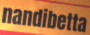
nandibetta